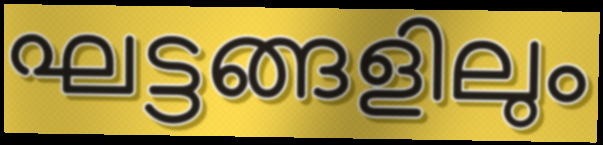
ഘട്ടങ്ങളിലും